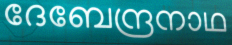
ദേബേന്ദ്രനാഥ